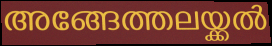
അങ്ങേത്തലയ്ക്കൽ